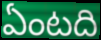
ఏంటది